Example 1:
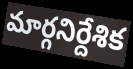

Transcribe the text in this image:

మార్గనిర్దేశిక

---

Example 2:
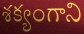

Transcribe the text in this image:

శక్యంగాని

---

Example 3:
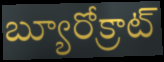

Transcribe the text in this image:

బ్యూరోక్రాట్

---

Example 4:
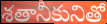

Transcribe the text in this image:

శతానీకునితో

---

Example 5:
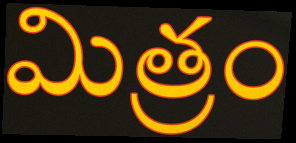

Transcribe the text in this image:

మిత్రం